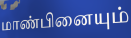
மாண்பினையும்